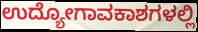
ಉದ್ಯೋಗಾವಕಾಶಗಳಲ್ಲಿ